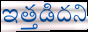
ఇత్తడిదని